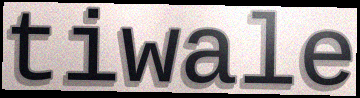
tiwale